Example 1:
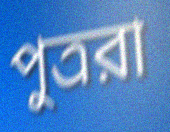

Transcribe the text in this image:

পুত্ররা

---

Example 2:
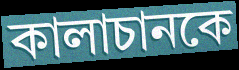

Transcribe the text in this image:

কালাচানকে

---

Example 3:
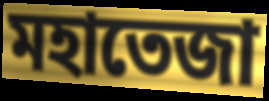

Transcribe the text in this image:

মহাতেজা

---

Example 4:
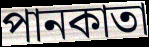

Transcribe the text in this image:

পানকাতা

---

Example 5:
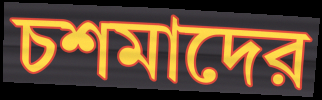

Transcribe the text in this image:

চশমাদের